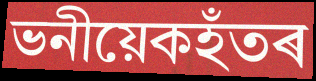
ভনীয়েকহঁতৰ